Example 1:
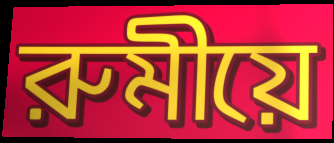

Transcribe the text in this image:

ৰুমীয়ে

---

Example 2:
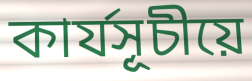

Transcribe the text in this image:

কাৰ্যসূচীয়ে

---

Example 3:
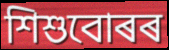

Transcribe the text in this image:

শিশুবোৰৰ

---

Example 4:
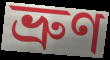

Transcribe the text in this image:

ভ্ৰুণ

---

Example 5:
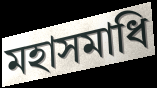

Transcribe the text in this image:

মহাসমাধি